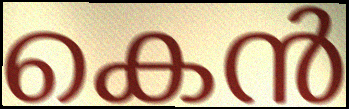
കെൻ